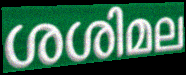
ശശിമല